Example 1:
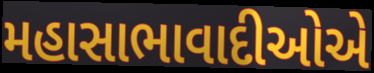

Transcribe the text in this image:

મહાસાભાવાદીઓએ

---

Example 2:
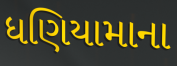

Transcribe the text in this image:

ધણિયામાના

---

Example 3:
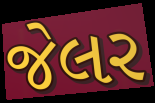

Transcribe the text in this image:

જેલર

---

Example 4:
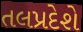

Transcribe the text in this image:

તલપ્રદેશે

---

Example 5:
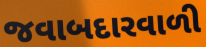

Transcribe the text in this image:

જવાબદારવાળી